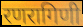
रणरागिणी